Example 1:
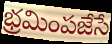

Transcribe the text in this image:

భ్రమింపజేసే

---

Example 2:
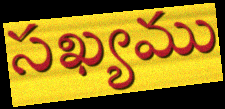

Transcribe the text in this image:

సఖ్యము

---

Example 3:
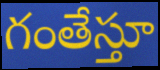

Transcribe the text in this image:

గంతేస్తూ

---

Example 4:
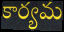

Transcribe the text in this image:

కార్యమ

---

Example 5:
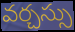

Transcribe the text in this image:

వర్చస్సు